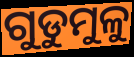
ଗୁଡୁମୁଳୁ